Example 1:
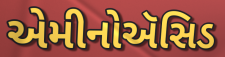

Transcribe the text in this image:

એમીનોઍસિડ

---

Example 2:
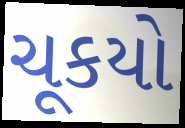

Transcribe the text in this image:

ચૂકયો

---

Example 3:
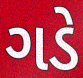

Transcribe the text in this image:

ગડે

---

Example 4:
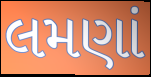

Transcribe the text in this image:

લમણાં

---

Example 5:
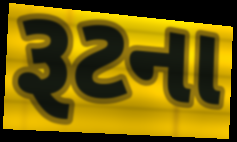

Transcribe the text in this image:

રૂટના